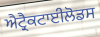
ਐਟ੍ਰੈਕਟਾਈਲੋਡਸ